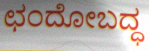
ಛಂದೋಬದ್ಧ